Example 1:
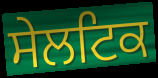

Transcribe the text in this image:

ਸੇਲਟਿਕ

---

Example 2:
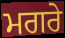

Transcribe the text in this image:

ਮਗਰੇ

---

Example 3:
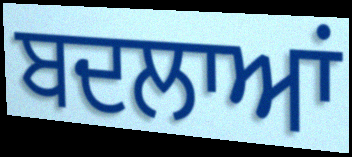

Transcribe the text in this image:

ਬਦਲਾਆਂ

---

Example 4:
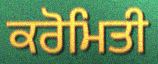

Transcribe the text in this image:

ਕਰੋਮਿਤੀ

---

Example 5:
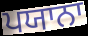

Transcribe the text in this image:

ਪਯਾਨਾ